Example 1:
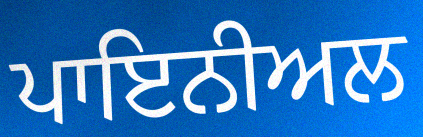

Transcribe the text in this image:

ਪਾਇਨੀਅਲ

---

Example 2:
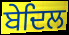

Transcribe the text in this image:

ਬੇਦਿਲ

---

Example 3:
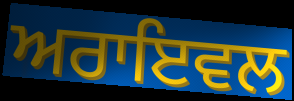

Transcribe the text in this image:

ਅਰਾਇਵਲ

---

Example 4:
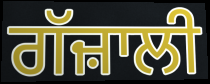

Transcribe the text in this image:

ਗੱਜ਼ਾਲੀ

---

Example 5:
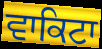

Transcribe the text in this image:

ਵਾਕਿਟਾ